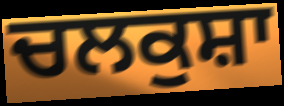
ਚਲਕੁਸ਼ਾ